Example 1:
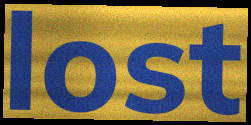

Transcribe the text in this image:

lost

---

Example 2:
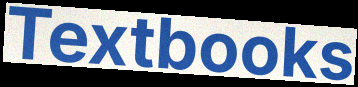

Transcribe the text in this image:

Textbooks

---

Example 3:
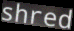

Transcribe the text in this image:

shred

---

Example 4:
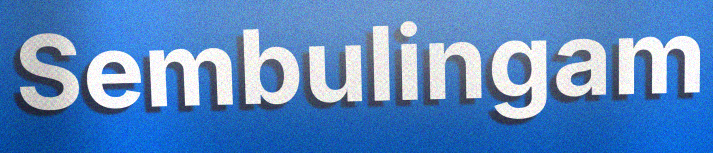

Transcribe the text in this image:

Sembulingam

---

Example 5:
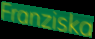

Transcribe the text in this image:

Franziska